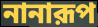
নানারূপ